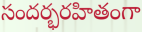
సందర్భరహితంగా